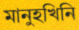
মানুহখিনি